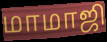
மாமாஜி